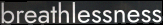
breathlessness